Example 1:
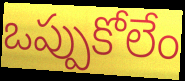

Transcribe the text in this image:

ఒప్పుకోలేం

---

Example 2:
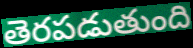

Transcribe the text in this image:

తెరపడుతుంది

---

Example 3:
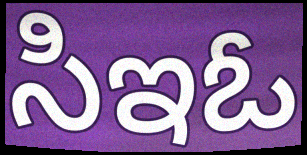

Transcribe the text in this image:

సిఇఓ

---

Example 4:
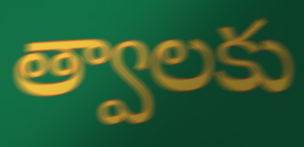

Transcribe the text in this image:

త్వాలకు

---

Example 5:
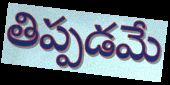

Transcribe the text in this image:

తిప్పడమే